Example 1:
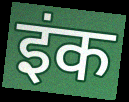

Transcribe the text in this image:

इंक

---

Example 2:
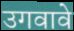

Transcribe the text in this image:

उगवावे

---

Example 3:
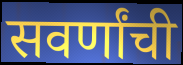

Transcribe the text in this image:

सवर्णांची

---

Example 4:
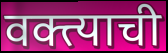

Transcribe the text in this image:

वक्त्याची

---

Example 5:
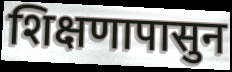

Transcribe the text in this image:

शिक्षणापासुन